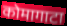
कोमागाटा